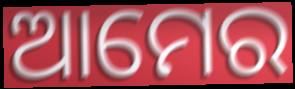
ଆମେର